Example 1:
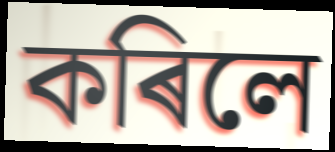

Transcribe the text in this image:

কৰিলে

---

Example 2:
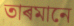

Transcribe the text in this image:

তাৰমানে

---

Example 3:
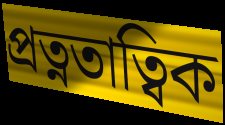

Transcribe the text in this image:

প্ৰত্নতাত্বিক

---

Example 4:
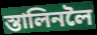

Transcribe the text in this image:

স্তালিনলৈ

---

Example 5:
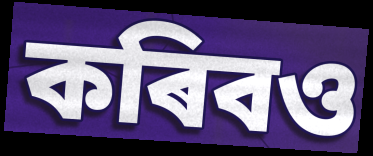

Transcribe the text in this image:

কৰিবও